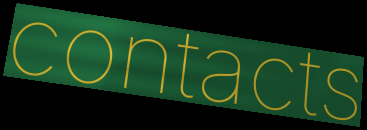
contacts